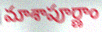
మాశాపూర్ణాం